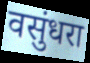
वसुंधरा